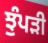
ਝੁੰਪੜੀ